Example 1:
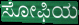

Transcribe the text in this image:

ಸೋಫಿಯ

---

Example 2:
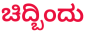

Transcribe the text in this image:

ಚಿದ್ಬಿಂದು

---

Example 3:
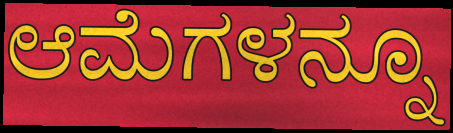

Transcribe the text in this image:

ಆಮೆಗಳನ್ನೂ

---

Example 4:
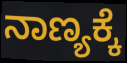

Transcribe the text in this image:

ನಾಣ್ಯಕ್ಕೆ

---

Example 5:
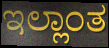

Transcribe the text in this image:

ಇಲ್ಲಾಂತ